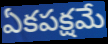
ఏకపక్షమే